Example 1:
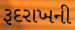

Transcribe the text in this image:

રૂદરાખની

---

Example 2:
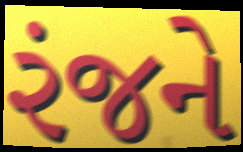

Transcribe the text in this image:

રંજને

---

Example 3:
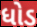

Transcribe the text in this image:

ધોડ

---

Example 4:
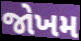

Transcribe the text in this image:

જોખમ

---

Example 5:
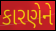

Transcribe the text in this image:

કારણેને